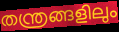
തന്ത്രങ്ങളിലും